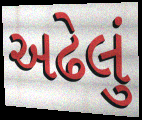
અઢેલું